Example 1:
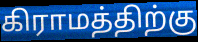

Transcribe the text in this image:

கிராமத்திற்கு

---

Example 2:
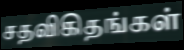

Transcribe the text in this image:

சதவிகிதங்கள்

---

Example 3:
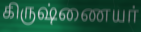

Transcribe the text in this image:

கிருஷ்ணையர்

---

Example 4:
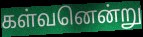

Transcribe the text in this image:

கள்வனென்று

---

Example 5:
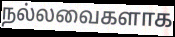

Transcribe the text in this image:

நல்லவைகளாக